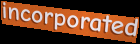
incorporated